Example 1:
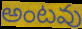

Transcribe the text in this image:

అంటవు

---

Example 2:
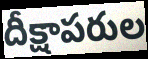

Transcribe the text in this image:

దీక్షాపరుల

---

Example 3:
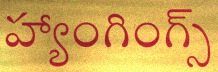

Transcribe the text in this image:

హ్యాంగింగ్స్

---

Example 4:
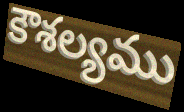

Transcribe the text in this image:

కౌశల్యము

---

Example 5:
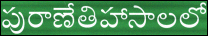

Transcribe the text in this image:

పురాణేతిహాసాలలో